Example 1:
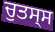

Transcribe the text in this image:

ਚੁਤਸ੍ਸ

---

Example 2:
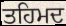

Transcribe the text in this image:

ਤਹਿਮਦ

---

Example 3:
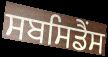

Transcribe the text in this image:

ਸਬਸਿਡੈਂਸ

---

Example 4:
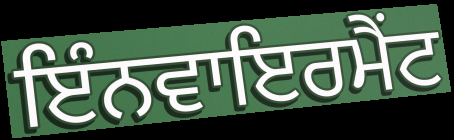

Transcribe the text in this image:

ਇੰਨਵਾਇਰਮੈਂਟ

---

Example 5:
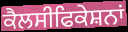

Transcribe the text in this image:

ਕੈਲਸੀਫਿਕੇਸ਼ਨਾਂ